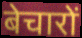
बेचारों